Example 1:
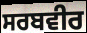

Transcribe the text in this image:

ਸਰਬਵੀਰ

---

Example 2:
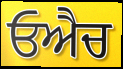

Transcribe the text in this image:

ਓਐਚ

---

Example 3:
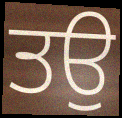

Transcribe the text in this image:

ਤਉ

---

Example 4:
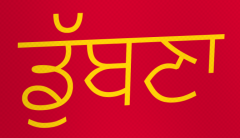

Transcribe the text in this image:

ਡੁੱਬਣਾ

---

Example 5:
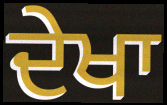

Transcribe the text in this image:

ਦੇਖਾ